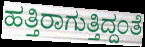
ಹತ್ತಿರಾಗುತ್ತಿದ್ದಂತೆ